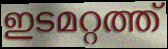
ഇടമറ്റത്ത്